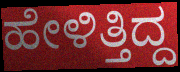
ಹೇಳಿತ್ತಿದ್ದ